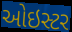
ઓઇસ્ટર